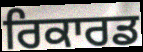
ਰਿਕਾਰਡ